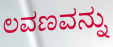
ಲವಣವನ್ನು